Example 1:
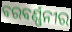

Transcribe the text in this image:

ବରବର୍ଣ୍ଣନୀର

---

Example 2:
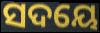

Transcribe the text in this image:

ସଦୟେ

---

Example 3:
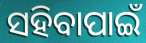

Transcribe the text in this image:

ସହିବାପାଇଁ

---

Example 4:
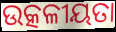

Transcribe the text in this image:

ଉତ୍କଳୀୟତା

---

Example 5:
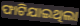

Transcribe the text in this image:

ଫାଟିଯାଇଥିଲା